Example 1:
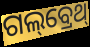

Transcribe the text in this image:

ଗଲ୍‌ବ୍ରେଥ୍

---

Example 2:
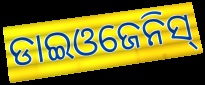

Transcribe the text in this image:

ଡାଇଓଜେନିସ୍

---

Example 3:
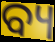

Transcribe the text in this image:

ବ୍ୟ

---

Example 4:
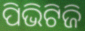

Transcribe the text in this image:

ପିଭିଟିଜି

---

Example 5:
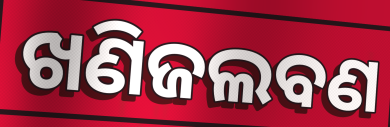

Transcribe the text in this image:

ଖଣିଜଲବଣ